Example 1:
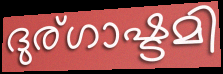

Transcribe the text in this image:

ദുര്ഗാഷ്ടമി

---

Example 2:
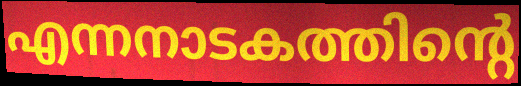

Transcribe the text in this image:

എന്നനാടകത്തിന്റെ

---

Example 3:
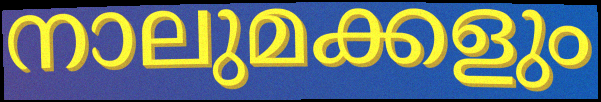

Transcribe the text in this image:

നാലുമക്കളും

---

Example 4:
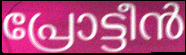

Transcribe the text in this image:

പ്രോട്ടീൻ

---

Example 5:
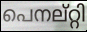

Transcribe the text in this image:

പെനല്റ്റി